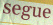
segue